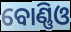
ବୋଣ୍ଣିଓ